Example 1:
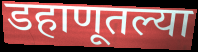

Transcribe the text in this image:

डहाणूतल्या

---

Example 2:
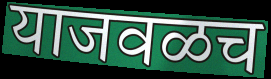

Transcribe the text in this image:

याजवळच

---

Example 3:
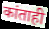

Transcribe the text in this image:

कांताही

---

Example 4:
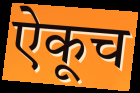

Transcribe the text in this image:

ऐकूच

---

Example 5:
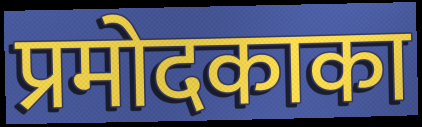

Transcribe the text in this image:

प्रमोदकाका